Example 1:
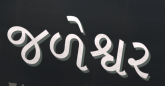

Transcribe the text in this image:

જળેશ્વર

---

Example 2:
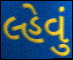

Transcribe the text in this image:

લ્હેવું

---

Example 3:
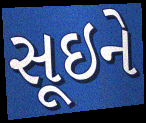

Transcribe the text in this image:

સૂઇને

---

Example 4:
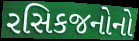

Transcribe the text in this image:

રસિકજનોનો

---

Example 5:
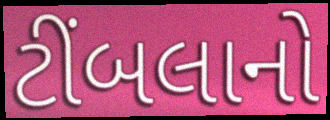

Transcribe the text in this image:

ટીંબલાનો